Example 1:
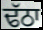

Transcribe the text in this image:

ਢੱਠਾ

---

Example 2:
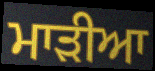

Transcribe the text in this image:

ਮਾੜੀਆ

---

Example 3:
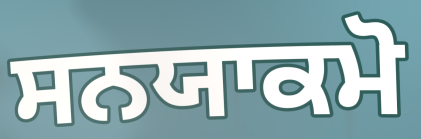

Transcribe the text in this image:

ਸਨਯਾਕਮੋ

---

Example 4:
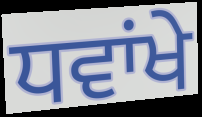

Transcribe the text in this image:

ਧਵਾਂਖੇ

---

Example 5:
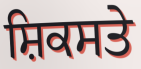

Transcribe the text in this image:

ਸ਼ਿਕਸਤੇ